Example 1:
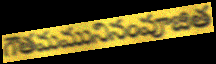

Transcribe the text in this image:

గౌతమమునిసంపూజిత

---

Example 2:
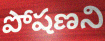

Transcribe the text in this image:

పోషణని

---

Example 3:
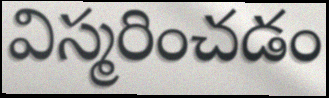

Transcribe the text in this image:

విస్మరించడం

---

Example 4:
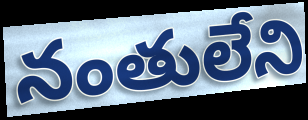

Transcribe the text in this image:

నంతులేని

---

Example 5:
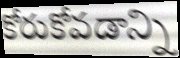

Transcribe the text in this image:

కోరుకోవడాన్ని